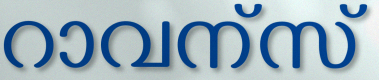
റാവന്സ്